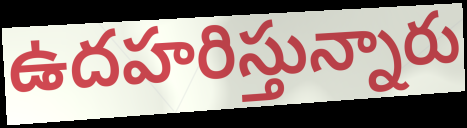
ఉదహరిస్తున్నారు